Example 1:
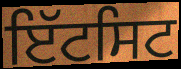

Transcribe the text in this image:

ਇੱਟਸਿਟ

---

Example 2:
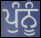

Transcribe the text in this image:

ਪੁੰਨੂੰ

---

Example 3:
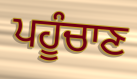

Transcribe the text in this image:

ਪਹੂੰਚਾਣ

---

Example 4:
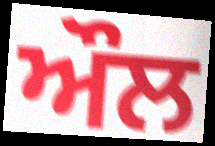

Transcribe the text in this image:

ਔਲ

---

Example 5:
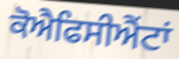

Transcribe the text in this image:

ਕੋਐਫਿਸੀਐਂਟਾਂ